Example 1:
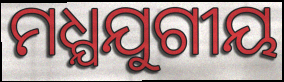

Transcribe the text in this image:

ମଧ୍ଯଯୁଗୀୟ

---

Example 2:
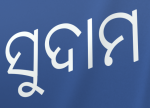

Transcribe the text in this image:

ସୁଦାମ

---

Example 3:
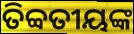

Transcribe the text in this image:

ତିବ୍ବତୀୟଙ୍କ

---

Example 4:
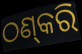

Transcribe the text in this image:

ଠଣ୍‌କରି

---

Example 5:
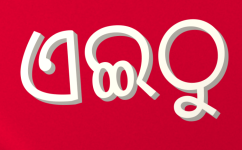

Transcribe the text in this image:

ଏଇଠୁ